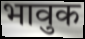
भावुक